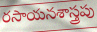
రసాయనశాస్త్రపు